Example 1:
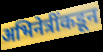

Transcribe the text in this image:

अभिनेत्रींकडून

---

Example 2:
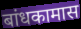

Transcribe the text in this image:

बांधकामास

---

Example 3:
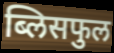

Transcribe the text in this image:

ब्लिसफुल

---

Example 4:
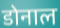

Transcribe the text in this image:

डोनाल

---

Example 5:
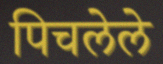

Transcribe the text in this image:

पिचलेले